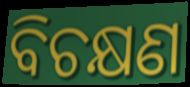
ବିଚକ୍ଷଣ